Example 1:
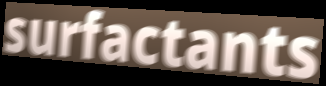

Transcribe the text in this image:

surfactants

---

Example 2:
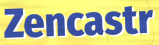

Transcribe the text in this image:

Zencastr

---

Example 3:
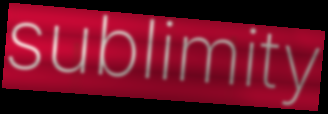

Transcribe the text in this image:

sublimity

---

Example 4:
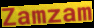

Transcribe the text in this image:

Zamzam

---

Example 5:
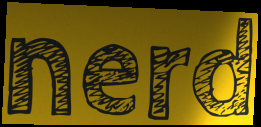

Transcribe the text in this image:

nerd